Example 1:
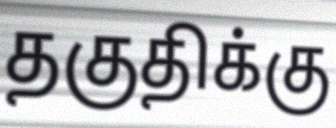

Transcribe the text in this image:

தகுதிக்கு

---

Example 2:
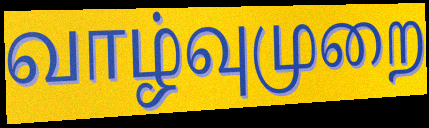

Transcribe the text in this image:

வாழ்வுமுறை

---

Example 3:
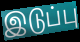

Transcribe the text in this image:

இடுப்பு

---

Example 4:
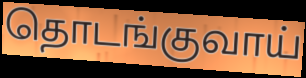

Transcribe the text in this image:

தொடங்குவாய்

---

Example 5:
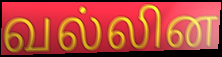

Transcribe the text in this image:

வல்லின